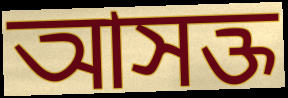
আসক্ত